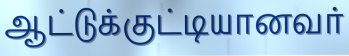
ஆட்டுக்குட்டியானவர்